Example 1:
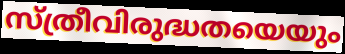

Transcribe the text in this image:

സ്ത്രീവിരുദ്ധതയെയും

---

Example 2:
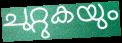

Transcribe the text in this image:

ചുറ്റുകയും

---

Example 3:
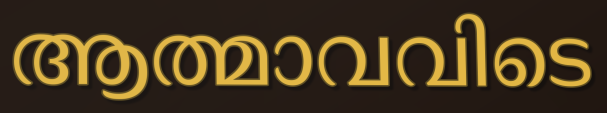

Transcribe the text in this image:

ആത്മാവവിടെ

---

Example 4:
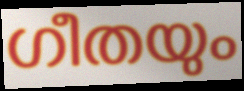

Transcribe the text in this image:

ഗീതയും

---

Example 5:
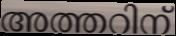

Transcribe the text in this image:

അത്തറിന്